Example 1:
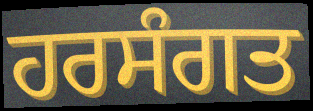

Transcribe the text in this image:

ਹਰਸੰਗਤ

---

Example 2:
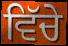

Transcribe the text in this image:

ਵਿੱਚੇ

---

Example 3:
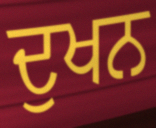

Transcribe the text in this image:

ਦੁਖਨ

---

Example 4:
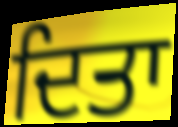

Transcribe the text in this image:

ਦਿਤਾ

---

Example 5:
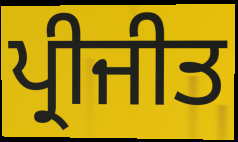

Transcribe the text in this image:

ਪ੍ਰੀਜੀਤ